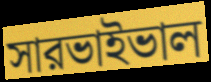
সারভাইভাল